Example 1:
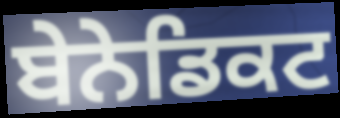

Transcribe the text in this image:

ਬੇਨੇਡਿਕਟ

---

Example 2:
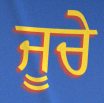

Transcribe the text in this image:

ਜੂਚੇ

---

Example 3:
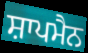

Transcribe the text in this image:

ਸ਼ਾਪਮੈਨ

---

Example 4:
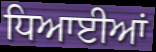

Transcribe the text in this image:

ਧਿਆਈਆਂ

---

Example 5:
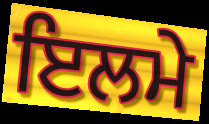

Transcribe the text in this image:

ਇਲਮੇ